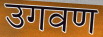
उगवण